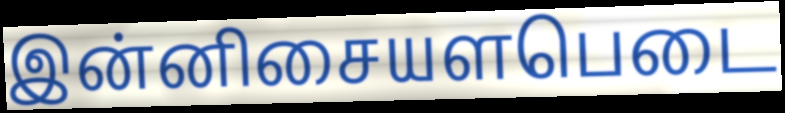
இன்னிசையளபெடை